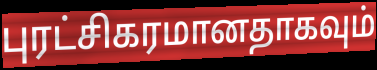
புரட்சிகரமானதாகவும்